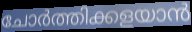
ചോർത്തിക്കളയാൻ